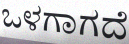
ಒಳಗಾಗದೆ